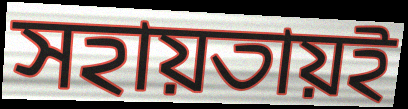
সহায়তায়ই